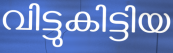
വിട്ടുകിട്ടിയ